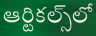
ఆర్టికల్స్‌లో